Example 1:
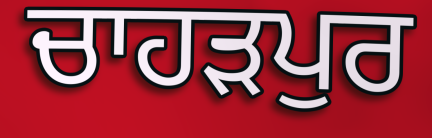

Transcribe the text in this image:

ਚਾਹਡ਼ਪੁਰ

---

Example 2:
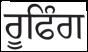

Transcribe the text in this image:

ਰੂਫਿੰਗ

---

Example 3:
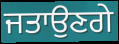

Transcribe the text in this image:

ਜਤਾਉਣਗੇ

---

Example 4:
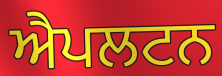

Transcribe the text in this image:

ਐਪਲਟਨ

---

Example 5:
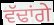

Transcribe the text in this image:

ਵੱਢਾਂਗੇ